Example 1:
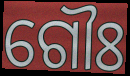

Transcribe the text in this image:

ଗୌଃ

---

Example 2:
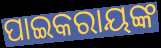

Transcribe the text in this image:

ପାଇକରାୟଙ୍କ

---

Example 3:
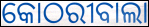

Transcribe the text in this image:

କୋଠରୀବାଲା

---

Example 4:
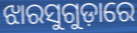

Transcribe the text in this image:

ଝାରସୁଗୁଡ଼ାରେ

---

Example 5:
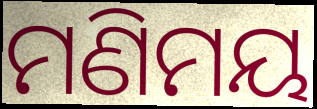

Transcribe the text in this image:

ମଣିମୟ